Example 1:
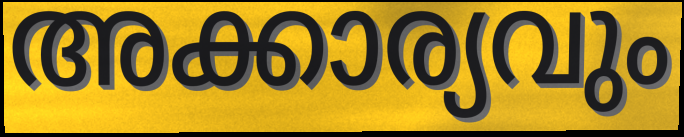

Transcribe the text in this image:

അക്കാര്യവും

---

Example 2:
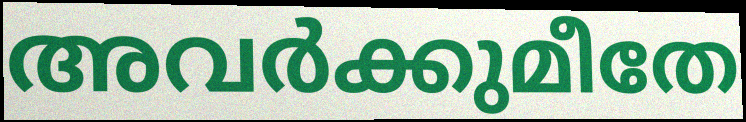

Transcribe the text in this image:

അവർക്കുമീതേ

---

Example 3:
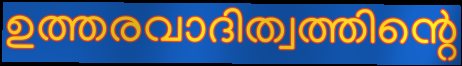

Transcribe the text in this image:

ഉത്തരവാദിത്വത്തിന്റെ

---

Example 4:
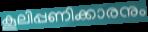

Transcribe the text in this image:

കൂലിപ്പണിക്കാരനും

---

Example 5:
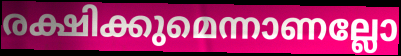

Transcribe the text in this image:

രക്ഷിക്കുമെന്നാണല്ലോ